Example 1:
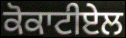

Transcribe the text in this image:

ਕੋਕਾਟੀਏਲ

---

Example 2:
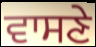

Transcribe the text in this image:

ਵਾਸਣੇ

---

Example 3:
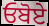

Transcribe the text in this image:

ਓਬੋਏ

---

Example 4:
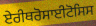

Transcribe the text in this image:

ਏਰੀਥਰੋਸਾਈਟੋਸਿਸ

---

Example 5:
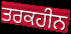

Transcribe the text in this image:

ਤਰਕਹੀਨ